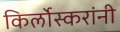
किर्लोस्करांनी